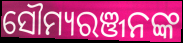
ସୌମ୍ୟରଞ୍ଜନଙ୍କ